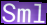
Sml